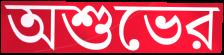
অশুভের